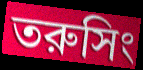
তরুসিং